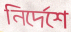
নির্দেশে